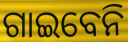
ଗାଇବେନି